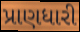
પ્રાણધારી